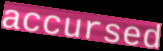
accursed